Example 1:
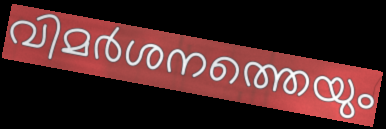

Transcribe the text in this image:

വിമർശനത്തെയും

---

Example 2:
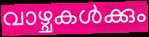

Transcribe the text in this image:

വാഴ്ചകൾക്കും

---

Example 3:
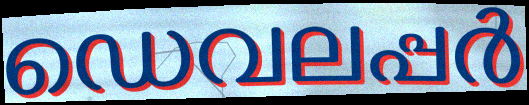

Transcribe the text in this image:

ഡെവലപ്പർ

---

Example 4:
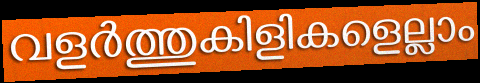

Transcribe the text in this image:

വളർത്തുകിളികളെല്ലാം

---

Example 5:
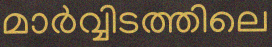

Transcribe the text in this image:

മാർവ്വിടത്തിലെ